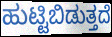
ಹುಟ್ಟಿಬಿಡುತ್ತದೆ